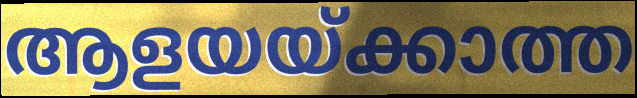
ആളയയ്ക്കാത്ത